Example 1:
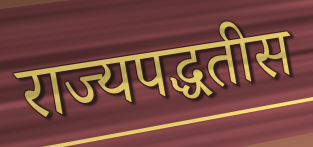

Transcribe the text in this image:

राज्यपद्धतीस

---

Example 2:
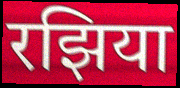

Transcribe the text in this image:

रझिया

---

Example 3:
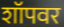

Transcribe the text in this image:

शॉपवर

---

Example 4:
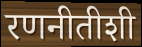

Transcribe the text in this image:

रणनीतीशी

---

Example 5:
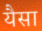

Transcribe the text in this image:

यैसा